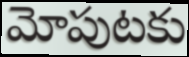
మోపుటకు